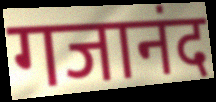
गजानंद